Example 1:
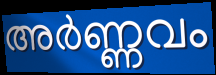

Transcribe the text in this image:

അർണ്ണവം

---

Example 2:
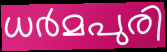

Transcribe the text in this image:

ധർമപുരി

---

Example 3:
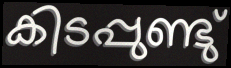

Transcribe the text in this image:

കിടപ്പുണ്ടു്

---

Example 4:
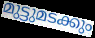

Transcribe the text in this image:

മുട്ടുമടക്കും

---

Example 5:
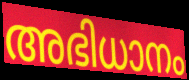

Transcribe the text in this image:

അഭിധാനം